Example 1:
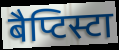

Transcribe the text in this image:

बैप्टिस्टा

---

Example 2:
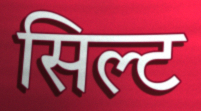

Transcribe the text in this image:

सिल्ट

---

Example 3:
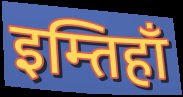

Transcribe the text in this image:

इम्तिहाँ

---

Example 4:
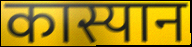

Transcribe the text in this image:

कास्यान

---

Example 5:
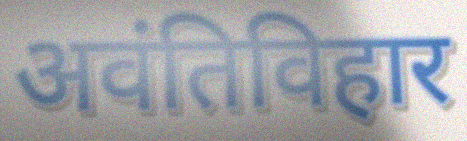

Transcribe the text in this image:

अवंतिविहार